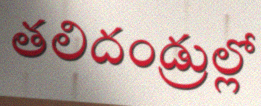
తలిదండ్రుల్లో